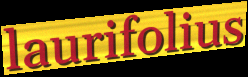
laurifolius